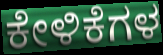
ಕೇಳಿಕೆಗಳ